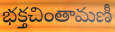
భక్తచింతామణీ